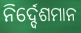
ନିର୍ଦ୍ଦେଶମାନ